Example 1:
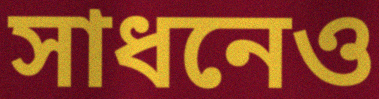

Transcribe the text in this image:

সাধনেও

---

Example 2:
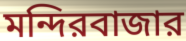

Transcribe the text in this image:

মন্দিরবাজার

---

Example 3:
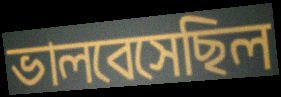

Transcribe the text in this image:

ভালবেসেছিল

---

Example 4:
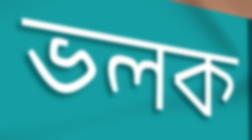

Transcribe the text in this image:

ভলক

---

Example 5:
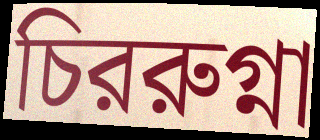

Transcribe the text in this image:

চিররুগ্না